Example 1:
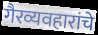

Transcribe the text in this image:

गैरव्यवहारांचे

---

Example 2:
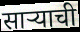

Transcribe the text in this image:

सार्‍याची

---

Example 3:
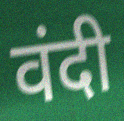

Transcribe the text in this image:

वंदी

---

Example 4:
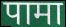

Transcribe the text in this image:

पामा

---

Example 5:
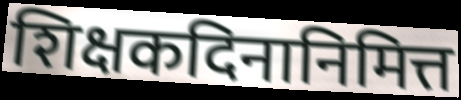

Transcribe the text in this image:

शिक्षकदिनानिमित्त